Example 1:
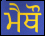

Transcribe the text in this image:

ਮੈਥੌ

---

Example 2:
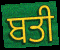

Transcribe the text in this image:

ਬਤੀ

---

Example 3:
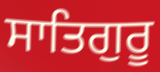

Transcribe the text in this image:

ਸਾਤਿਗੁਰੂ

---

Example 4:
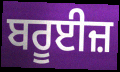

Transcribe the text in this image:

ਬਰੂਈਜ਼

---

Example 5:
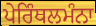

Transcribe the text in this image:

ਪੇਰਿੰਥਲਮੰਨਾ